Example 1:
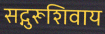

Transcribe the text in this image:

सद्गुरूशिवाय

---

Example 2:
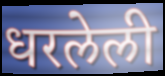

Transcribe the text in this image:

धरलेली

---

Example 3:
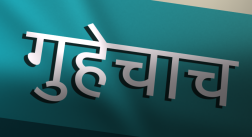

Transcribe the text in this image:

गुहेचाच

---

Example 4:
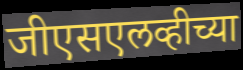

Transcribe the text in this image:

जीएसएलव्हीच्या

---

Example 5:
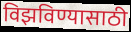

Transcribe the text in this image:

विझविण्यासाठी